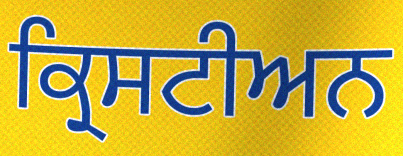
ਕ੍ਰਿਸਟੀਅਨ